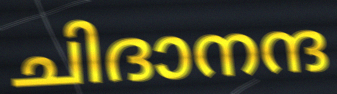
ചിദാനന്ദ